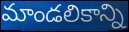
మాండలికాన్ని